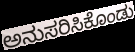
ಅನುಸರಿಸಿಕೊಂಡು